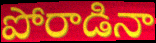
పోరాడినా